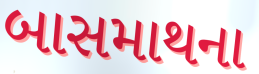
બાસમાથના